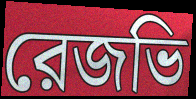
রেজভি